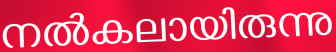
നൽകലായിരുന്നു